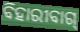
ବିହାରୀବାଗ୍